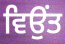
ਵਿਉਂਤ